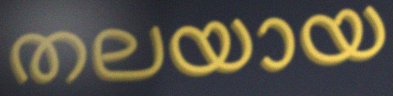
തലയായ